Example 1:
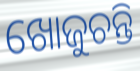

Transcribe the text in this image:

ଖୋଜୁଚନ୍ତି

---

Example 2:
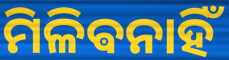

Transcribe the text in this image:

ମିଳିଵନାହିଁ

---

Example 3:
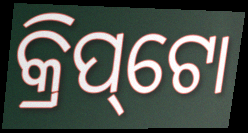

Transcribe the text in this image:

କ୍ରିପ୍‌ଟୋ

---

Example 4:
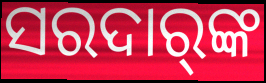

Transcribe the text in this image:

ସରଦାର୍‍ଙ୍କ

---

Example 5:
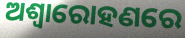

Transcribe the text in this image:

ଅଶ୍ଵାରୋହଣରେ